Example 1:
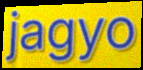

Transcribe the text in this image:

jagyo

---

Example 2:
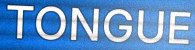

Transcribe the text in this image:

TONGUE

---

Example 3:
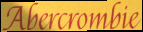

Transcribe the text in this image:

Abercrombie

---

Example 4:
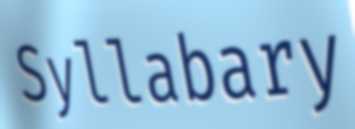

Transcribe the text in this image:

Syllabary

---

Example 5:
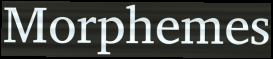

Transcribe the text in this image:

Morphemes